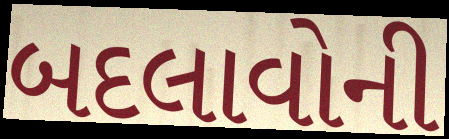
બદલાવોની